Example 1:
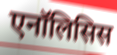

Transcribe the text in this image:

एनॉलिसिस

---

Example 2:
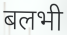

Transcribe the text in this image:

बलभी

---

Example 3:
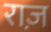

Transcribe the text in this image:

राज़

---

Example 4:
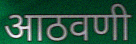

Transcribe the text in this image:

आठवणी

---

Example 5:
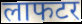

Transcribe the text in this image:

लाफटर